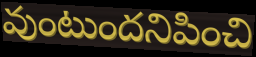
వుంటుందనిపించి